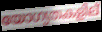
യോഗ്യതകളില്